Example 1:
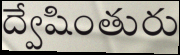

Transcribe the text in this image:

ద్వేషింతురు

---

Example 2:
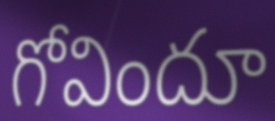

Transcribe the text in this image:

గోవిందూ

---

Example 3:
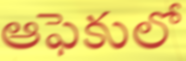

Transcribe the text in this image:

ఆఫెకులో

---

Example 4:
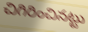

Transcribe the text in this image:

చిగిరించినట్టు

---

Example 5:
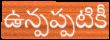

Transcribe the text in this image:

ఉన్పప్పటికీ